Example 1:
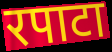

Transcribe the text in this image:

रपाटा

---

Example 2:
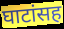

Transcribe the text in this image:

घाटांसह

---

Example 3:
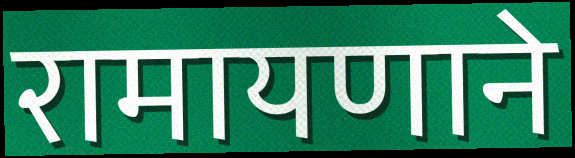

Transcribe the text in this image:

रामायणाने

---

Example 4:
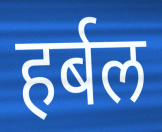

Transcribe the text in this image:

हर्बल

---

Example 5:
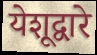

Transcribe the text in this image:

येशूद्वारे